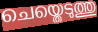
ചെയ്തെടുത്തു